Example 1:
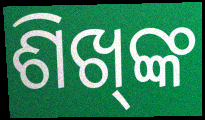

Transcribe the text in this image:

ଶିଖ୍‍ଙ୍କ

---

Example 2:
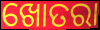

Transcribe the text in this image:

ଖୋତରା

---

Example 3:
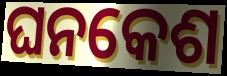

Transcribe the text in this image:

ଘନକେଶ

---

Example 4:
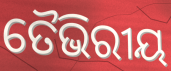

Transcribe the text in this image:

ତୈଭିରୀୟ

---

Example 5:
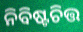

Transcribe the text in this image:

ନିବିଷ୍ଟଚିତ୍ତ